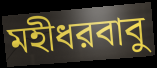
মহীধরবাবু